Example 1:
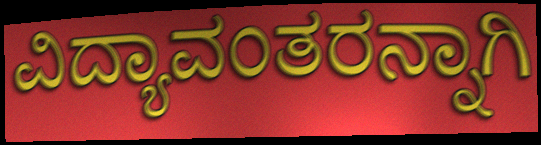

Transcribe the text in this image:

ವಿದ್ಯಾವಂತರನ್ನಾಗಿ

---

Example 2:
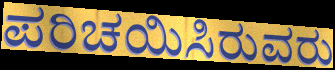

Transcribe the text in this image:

ಪರಿಚಯಿಸಿರುವರು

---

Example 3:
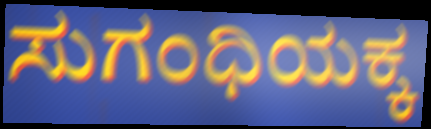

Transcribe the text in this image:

ಸುಗಂಧಿಯಕ್ಕ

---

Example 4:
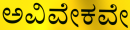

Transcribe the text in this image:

ಅವಿವೇಕವೇ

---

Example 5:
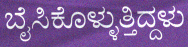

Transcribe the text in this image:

ಬೈಸಿಕೊಳ್ಳುತ್ತಿದ್ದಳು